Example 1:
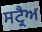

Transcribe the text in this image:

ਸਟ੍ਰੈਅ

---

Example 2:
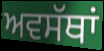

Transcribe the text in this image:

ਅਵਸੱਥਾਂ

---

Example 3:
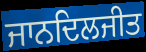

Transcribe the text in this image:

ਜਾਨਦਿਲਜੀਤ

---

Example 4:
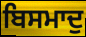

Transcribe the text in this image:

ਬਿਸਮਾਦੁ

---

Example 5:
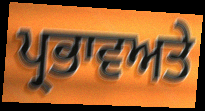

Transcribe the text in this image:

ਪ੍ਰਭਾਵਅਤੇ